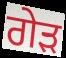
ਗੇੜ